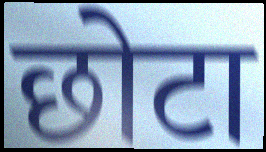
छोटा